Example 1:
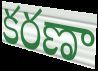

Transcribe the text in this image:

కరణా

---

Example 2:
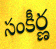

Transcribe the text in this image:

సంకీర్ణ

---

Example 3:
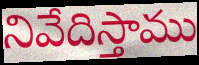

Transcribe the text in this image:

నివేదిస్తాము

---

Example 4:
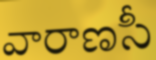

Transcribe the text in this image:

వారాణసీ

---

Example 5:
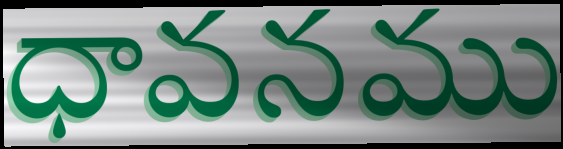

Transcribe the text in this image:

ధావనము